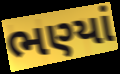
ભણ્યાં